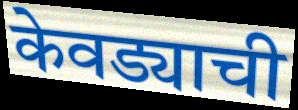
केवड्याची